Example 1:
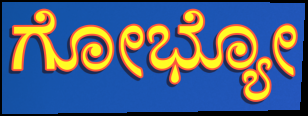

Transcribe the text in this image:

ಗೋಭ್ಯೋ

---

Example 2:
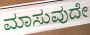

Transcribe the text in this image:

ಮಾಸುವುದೇ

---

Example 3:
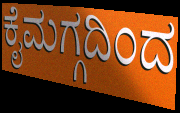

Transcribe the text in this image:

ಕೈಮಗ್ಗದಿಂದ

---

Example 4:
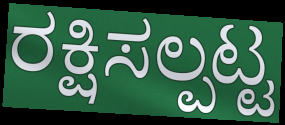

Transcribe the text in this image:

ರಕ್ಷಿಸಲ್ಪಟ್ಟ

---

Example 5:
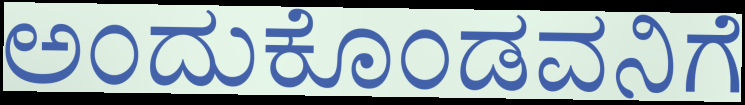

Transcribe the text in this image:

ಅಂದುಕೊಂಡವನಿಗೆ